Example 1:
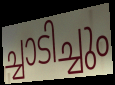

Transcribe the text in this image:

ച്ചാടിച്ചും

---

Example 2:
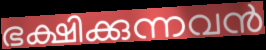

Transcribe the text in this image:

ഭക്ഷിക്കുന്നവൻ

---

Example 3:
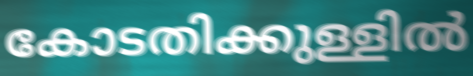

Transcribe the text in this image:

കോടതിക്കുള്ളിൽ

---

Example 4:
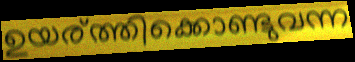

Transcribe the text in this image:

ഉയര്ത്തിക്കൊണ്ടുവന്ന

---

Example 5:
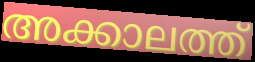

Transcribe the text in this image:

അക്കാലത്ത്